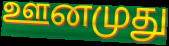
ஊனமுது